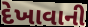
દેખાવાની